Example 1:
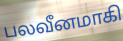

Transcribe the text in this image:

பலவீனமாகி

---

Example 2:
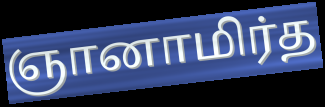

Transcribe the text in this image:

ஞானாமிர்த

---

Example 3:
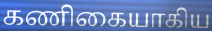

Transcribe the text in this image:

கணிகையாகிய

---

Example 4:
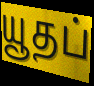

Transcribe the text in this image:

யூதப்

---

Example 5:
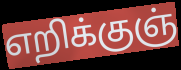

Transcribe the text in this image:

எறிக்குஞ்